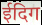
ईदिग